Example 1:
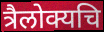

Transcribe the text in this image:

त्रैलोक्यचि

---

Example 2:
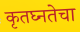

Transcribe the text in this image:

कृतघ्नतेचा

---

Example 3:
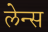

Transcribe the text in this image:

लेन्स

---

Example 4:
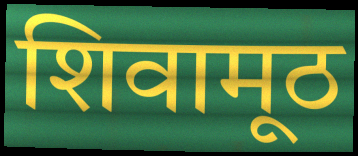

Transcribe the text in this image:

शिवामूठ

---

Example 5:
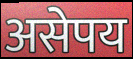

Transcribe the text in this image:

असेपय